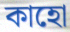
কাহো